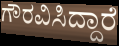
ಗೌರವಿಸಿದ್ದಾರೆ